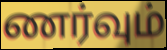
ணர்வும்